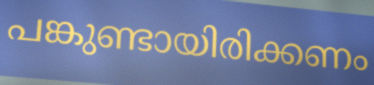
പങ്കുണ്ടായിരിക്കണം